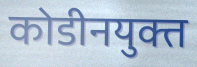
कोडीनयुक्त